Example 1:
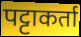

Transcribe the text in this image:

पट्टाकर्ता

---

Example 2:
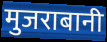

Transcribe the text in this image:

मुजराबानी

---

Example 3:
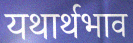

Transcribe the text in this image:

यथार्थभाव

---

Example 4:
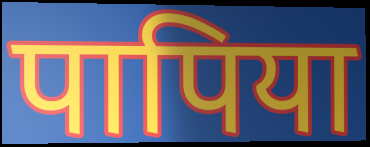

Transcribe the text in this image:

पापिया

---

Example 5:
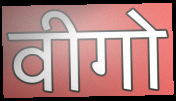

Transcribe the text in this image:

वीगो